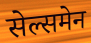
सेल्समेन